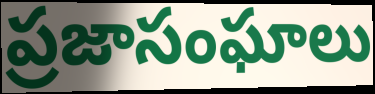
ప్రజాసంఘాలు